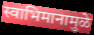
स्वाभिमानामुळे